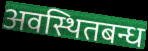
अवस्थितबन्ध